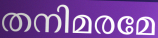
തനിമരമേ